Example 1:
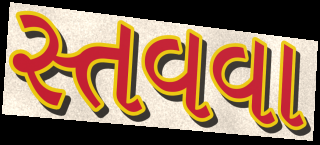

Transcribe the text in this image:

સ્તવવા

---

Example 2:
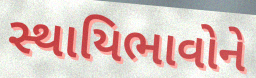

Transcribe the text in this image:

સ્થાયિભાવોને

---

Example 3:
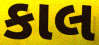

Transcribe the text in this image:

કાલ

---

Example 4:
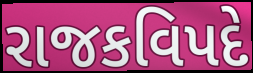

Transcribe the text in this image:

રાજકવિપદે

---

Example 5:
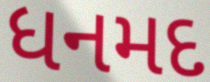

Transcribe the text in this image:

ધનમદ